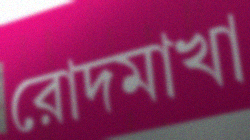
রোদমাখা